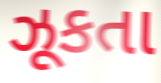
ઝૂકતા